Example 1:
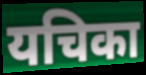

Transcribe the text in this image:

यचिका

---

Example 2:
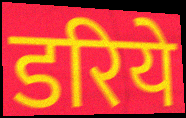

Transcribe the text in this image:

डरिये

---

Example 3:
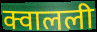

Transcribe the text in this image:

क्वालली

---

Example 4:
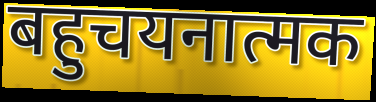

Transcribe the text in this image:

बहुचयनात्मक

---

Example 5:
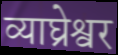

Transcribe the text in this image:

व्याघ्रेश्वर